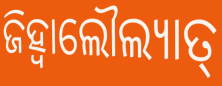
ଜିହ୍ଵାଲୌଲ୍ୟାତ୍